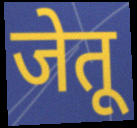
जेतू